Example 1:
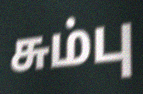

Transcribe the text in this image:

சும்பு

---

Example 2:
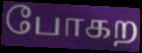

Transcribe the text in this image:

போகற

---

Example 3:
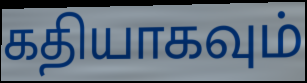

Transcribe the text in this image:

கதியாகவும்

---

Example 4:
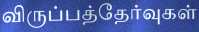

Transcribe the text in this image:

விருப்பத்தேர்வுகள்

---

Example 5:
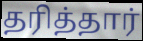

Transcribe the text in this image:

தரித்தார்